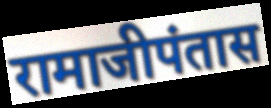
रामाजीपंतास